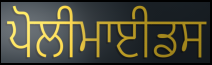
ਪੋਲੀਮਾਈਡਸ